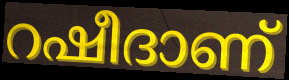
റഷീദാണ്